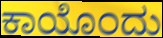
ಕಾಯೊಂದು